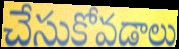
చేసుకోవడాలు